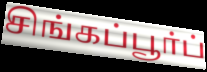
சிங்கப்பூர்ப்